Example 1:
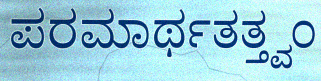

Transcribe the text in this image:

ಪರಮಾರ್ಥತತ್ತ್ವಂ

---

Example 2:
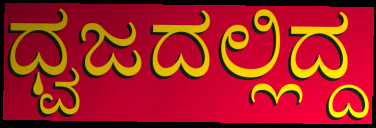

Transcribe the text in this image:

ಧ್ವಜದಲ್ಲಿದ್ದ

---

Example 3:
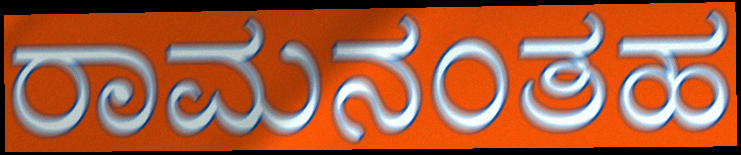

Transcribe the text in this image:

ರಾಮನಂತಹ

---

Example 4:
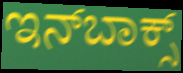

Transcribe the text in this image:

ಇನ್‍ಬಾಕ್ಸ್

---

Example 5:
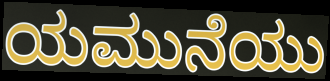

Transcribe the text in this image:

ಯಮುನೆಯು